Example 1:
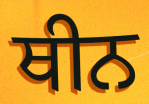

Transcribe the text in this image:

ਥੀਨ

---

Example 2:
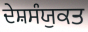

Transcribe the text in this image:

ਦੇਸ਼ਸੰਯੁਕਤ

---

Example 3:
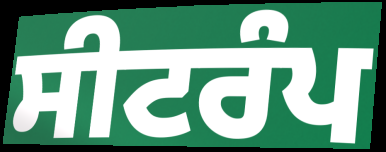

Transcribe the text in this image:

ਸੀਟਰੰਪ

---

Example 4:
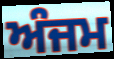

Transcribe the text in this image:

ਅੰਜਮ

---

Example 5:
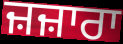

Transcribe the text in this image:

ਜ਼ਜ਼ਾਰਾ